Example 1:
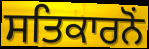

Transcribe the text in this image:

ਸਤਿਕਾਰਨੋਂ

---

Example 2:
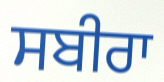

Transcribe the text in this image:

ਸਬੀਰਾ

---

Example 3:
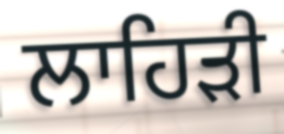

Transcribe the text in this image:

ਲਾਹਿੜੀ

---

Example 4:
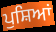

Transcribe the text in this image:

ਪੁਸ਼ਿਆਂ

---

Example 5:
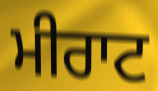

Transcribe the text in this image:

ਮੀਰਾਟ